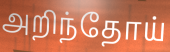
அறிந்தோய்